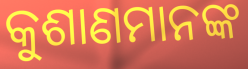
କୁଶାଣମାନଙ୍କ